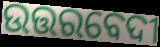
ଉତ୍ତରବେଦୀ